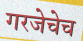
गरजेचेच